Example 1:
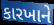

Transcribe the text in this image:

કારખાને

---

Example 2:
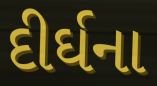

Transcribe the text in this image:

દીર્ઘના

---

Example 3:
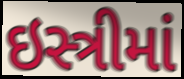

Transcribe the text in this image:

ઇસ્ત્રીમાં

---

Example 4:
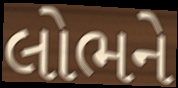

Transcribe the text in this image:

લોભને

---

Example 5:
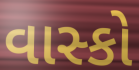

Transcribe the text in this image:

વાસ્કો